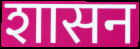
शासन